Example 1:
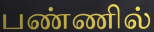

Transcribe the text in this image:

பண்ணில்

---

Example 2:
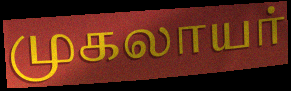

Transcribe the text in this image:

முகலாயர்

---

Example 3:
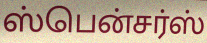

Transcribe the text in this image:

ஸ்பென்சர்ஸ்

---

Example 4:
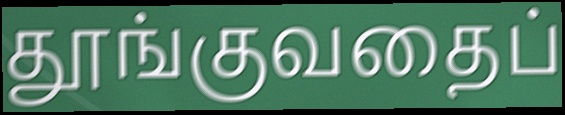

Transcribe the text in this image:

தூங்குவதைப்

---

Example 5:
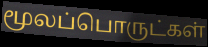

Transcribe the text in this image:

மூலப்பொருட்கள்